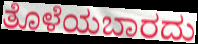
ತೊಳೆಯಬಾರದು